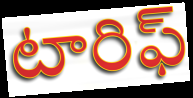
టారిఫ్